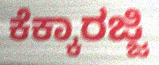
ಕೆಕ್ಕಾರಜ್ಜಿ